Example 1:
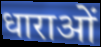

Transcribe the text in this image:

धाराओं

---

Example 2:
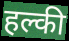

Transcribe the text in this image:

हल्की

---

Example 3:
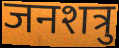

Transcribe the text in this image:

जनशत्रु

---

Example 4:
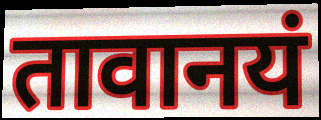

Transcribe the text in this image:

तावानयं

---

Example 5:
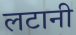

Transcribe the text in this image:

लटानी